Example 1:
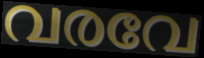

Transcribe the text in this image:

വരവേ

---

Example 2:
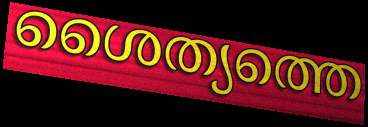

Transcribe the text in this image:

ശൈത്യത്തെ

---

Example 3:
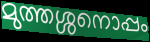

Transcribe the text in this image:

മുത്തശ്ശനൊപ്പം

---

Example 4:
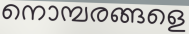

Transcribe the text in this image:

നൊമ്പരങ്ങളെ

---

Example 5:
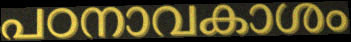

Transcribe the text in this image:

പഠനാവകാശം